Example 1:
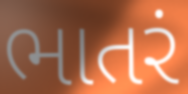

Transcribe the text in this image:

ભાતરં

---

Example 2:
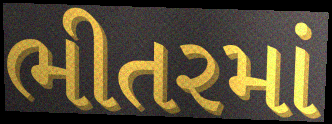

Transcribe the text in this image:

ભીતરમાં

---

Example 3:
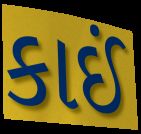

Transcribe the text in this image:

કાઈં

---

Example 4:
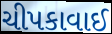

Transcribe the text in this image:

ચીપકાવાઈ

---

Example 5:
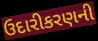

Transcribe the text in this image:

ઉદારીકરણની